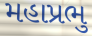
મહાપ્રભુ